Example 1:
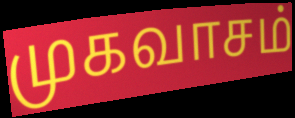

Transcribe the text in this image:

முகவாசம்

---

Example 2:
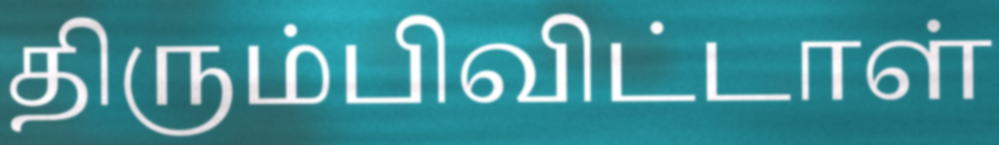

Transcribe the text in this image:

திரும்பிவிட்டாள்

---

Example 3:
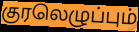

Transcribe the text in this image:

குரலெழுப்பும்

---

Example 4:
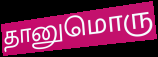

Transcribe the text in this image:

தானுமொரு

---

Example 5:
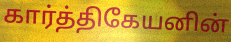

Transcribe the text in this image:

கார்த்திகேயனின்